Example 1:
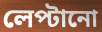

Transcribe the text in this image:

লেপ্টানো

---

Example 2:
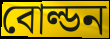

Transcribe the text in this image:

বোল্ডন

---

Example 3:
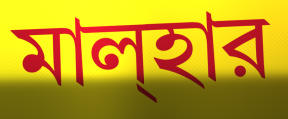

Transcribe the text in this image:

মাল্হার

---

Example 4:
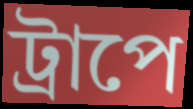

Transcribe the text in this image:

ট্রাপে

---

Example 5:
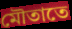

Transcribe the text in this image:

মৌতাতে